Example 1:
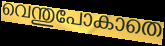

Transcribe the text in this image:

വെന്തുപോകാതെ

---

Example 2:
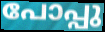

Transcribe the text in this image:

പോപ്പു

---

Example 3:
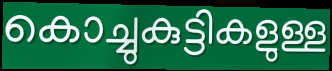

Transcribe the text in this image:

കൊച്ചുകുട്ടികളുള്ള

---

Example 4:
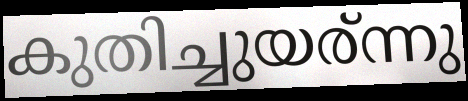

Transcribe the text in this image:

കുതിച്ചുയര്ന്നു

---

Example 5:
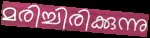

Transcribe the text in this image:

മരിച്ചിരിക്കുന്നു